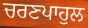
ਚਰਣਪਾਹੁਲ